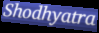
Shodhyatra